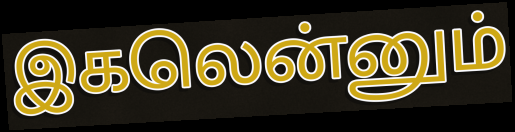
இகலென்னும்